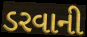
ડરવાની